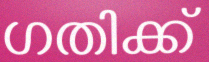
ഗതിക്ക്